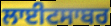
ਲਾਈਟਸਾਬਰ